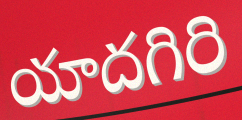
యాదగిరి